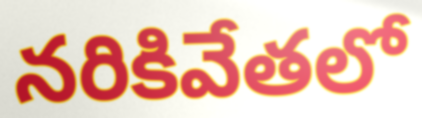
నరికివేతలో